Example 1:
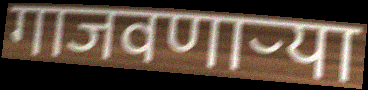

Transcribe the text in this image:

गाजवणाऱ्या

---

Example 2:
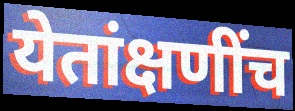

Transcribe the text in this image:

येतांक्षणींच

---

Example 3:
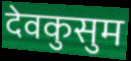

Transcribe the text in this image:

देवकुसुम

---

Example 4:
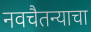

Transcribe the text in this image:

नवचैतन्याचा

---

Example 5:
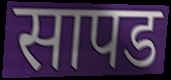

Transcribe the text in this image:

सापड